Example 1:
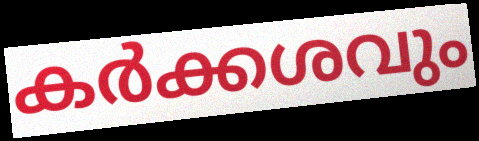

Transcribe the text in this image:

കർക്കശവും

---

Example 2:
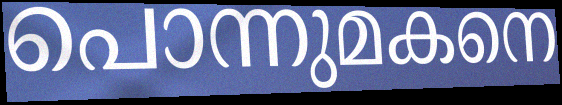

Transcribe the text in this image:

പൊന്നുമകനെ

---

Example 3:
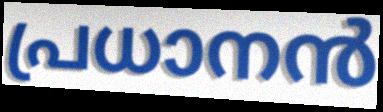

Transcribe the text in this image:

പ്രധാനൻ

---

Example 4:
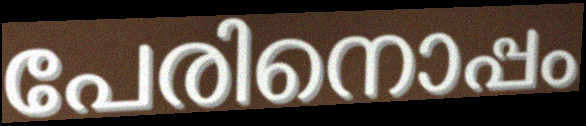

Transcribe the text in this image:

പേരിനൊപ്പം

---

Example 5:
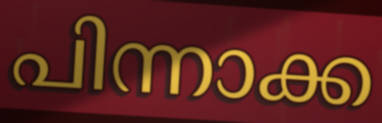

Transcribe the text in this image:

പിന്നാക്ക